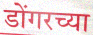
डोंगरच्या